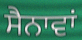
ਸੈਨਾਵਾਂ